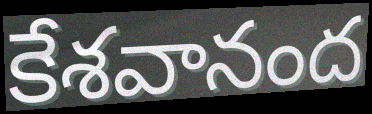
కేశవానంద